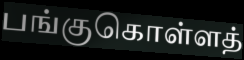
பங்குகொள்ளத்